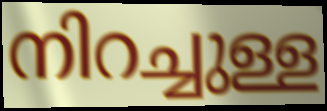
നിറച്ചുള്ള